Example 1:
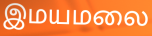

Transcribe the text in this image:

இமயமலை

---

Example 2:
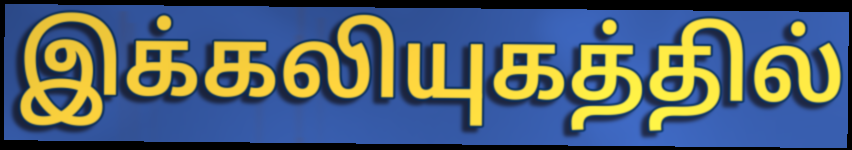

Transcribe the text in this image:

இக்கலியுகத்தில்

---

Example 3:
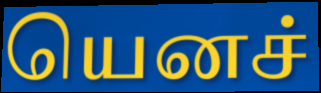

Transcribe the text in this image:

யெனச்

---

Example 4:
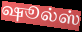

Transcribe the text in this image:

ஷூல்ஸ்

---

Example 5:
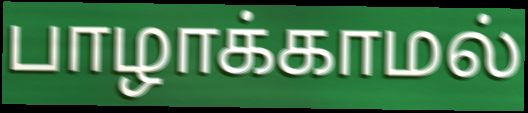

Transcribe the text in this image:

பாழாக்காமல்